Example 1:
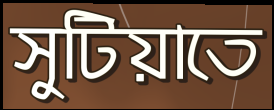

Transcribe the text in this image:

সুটিয়াতে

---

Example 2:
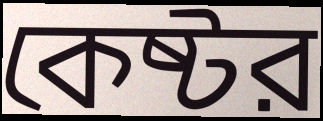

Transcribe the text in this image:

কেষ্টর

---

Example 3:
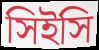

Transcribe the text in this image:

সিইসি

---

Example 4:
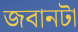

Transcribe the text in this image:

জবানটা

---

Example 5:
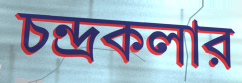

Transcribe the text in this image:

চন্দ্রকলার